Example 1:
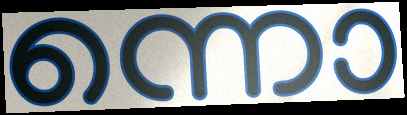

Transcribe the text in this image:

ന്നൊ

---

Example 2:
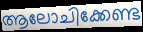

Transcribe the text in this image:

ആലോചിക്കേണ്ട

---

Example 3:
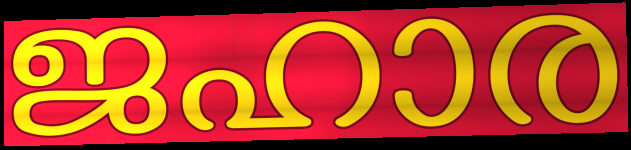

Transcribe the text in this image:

ജഹാര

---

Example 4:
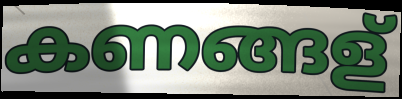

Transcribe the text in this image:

കണങ്ങള്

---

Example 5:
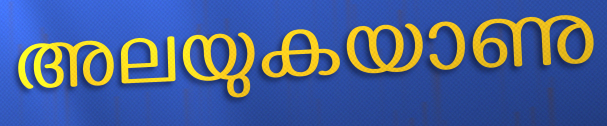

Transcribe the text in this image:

അലയുകയാണു